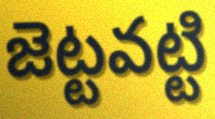
జెట్టవట్టి